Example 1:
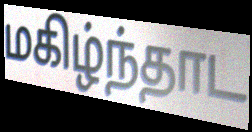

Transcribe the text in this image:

மகிழ்ந்தாட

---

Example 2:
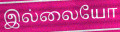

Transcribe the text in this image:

இல்லையோ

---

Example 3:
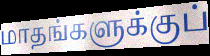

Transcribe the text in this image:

மாதங்களுக்குப்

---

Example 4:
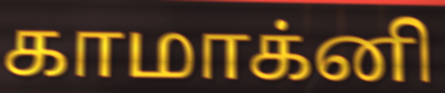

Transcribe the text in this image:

காமாக்னி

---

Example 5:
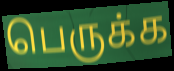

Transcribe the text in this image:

பெருக்க